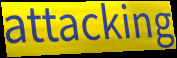
attacking